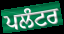
ਪਲੰਟਰ